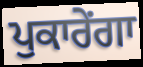
ਪੁਕਾਰੇਂਗਾ